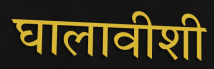
घालावीशी